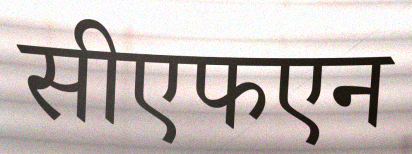
सीएफएन